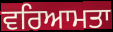
ਵਰਿਆਮਤਾ